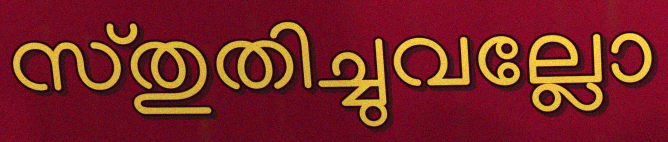
സ്തുതിച്ചുവല്ലോ